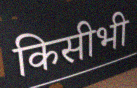
किसीभी